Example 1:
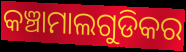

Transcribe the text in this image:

କଞ୍ଚାମାଲଗୁଡିକର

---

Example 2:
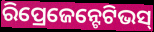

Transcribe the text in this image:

ରିପ୍ରେଜେନ୍ଟେଟିଭସ୍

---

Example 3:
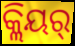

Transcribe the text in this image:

କ୍ଲିୟର୍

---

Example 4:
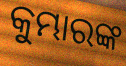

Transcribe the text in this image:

କୁମ୍ଭାରଙ୍କ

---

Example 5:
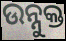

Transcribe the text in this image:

ଉନ୍ନୁକ୍ତ